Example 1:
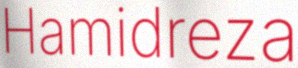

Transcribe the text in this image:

Hamidreza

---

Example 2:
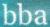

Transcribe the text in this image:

bba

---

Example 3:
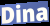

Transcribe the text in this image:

Dina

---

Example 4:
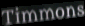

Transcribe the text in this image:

Timmons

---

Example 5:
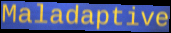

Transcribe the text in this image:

Maladaptive